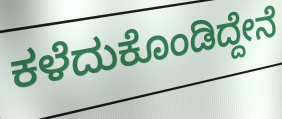
ಕಳೆದುಕೊಂಡಿದ್ದೇನೆ